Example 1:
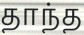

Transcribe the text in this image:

தாந்த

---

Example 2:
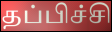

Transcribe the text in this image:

தப்பிச்சி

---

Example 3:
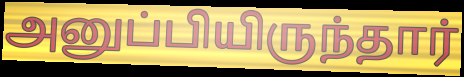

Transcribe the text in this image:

அனுப்பியிருந்தார்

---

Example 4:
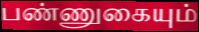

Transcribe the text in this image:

பண்ணுகையும்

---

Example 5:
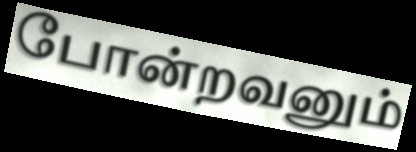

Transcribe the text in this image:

போன்றவனும்